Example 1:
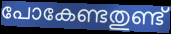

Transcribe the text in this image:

പോകേണ്ടതുണ്ട്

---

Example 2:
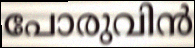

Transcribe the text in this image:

പോരുവിൻ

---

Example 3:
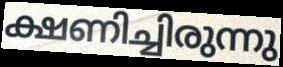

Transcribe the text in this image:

ക്ഷണിച്ചിരുന്നു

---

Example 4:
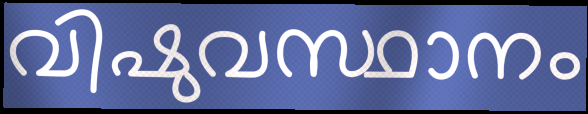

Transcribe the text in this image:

വിഷുവസ്ഥാനം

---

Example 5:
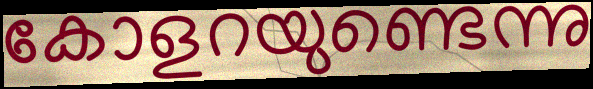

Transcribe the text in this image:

കോളറയുണ്ടെന്നു